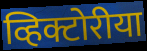
व्हिक्टोरीया